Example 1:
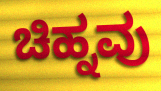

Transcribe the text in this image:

ಚಿಹ್ನವು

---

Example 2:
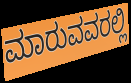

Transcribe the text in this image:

ಮಾರುವವರಲ್ಲಿ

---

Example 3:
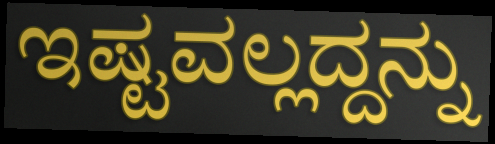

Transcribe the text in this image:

ಇಷ್ಟವಲ್ಲದ್ದನ್ನು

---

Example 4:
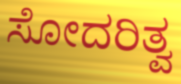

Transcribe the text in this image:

ಸೋದರಿತ್ವ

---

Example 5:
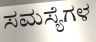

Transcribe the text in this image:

ಸಮಸ್ಯೆಗಳ